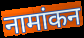
नामांकन